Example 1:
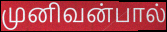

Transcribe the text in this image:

முனிவன்பால்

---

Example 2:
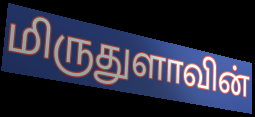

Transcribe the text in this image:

மிருதுளாவின்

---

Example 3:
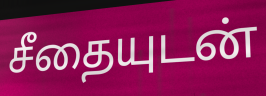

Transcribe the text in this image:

சீதையுடன்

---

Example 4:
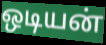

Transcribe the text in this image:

ஒடியன்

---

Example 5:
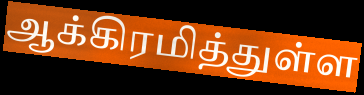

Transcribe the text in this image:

ஆக்கிரமித்துள்ள